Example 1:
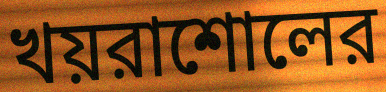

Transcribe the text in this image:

খয়রাশোলের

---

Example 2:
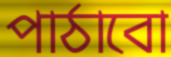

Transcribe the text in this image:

পাঠাবো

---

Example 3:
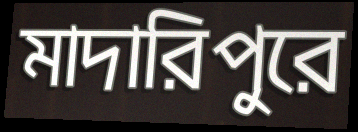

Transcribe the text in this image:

মাদারিপুরে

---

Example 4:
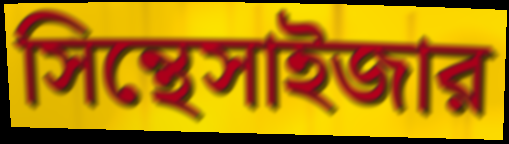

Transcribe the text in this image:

সিন্থেসাইজার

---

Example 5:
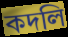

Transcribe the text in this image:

কদলি